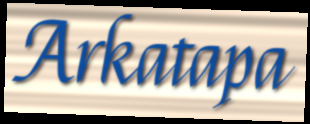
Arkatapa